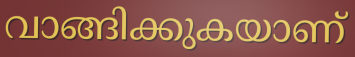
വാങ്ങിക്കുകയാണ്